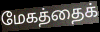
மேகத்தைக்